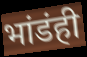
भांडंही